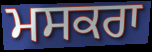
ਮਸਕਰਾ